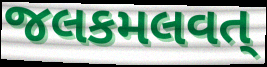
જલકમલવત્